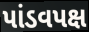
પાંડવપક્ષ